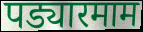
पड्यारमाम